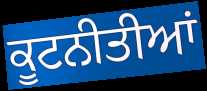
ਕੂਟਨੀਤੀਆਂ